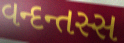
વન્દન્તસ્સ